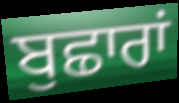
ਬੁਛਾਰਾਂ